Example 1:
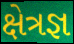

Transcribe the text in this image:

ક્ષેત્રજ્ઞ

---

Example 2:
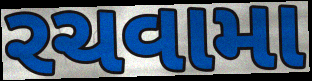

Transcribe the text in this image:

રચવામા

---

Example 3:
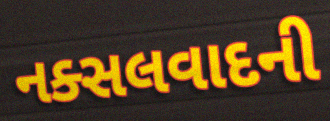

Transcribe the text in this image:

નક્સલવાદની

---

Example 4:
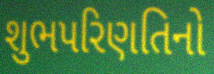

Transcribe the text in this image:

શુભપરિણતિનો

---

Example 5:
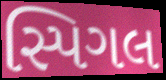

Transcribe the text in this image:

સ્પિગલ